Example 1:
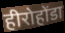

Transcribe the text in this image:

हीरोहोंडा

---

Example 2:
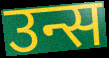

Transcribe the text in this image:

उन्स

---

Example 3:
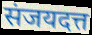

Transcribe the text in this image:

संजयदत्त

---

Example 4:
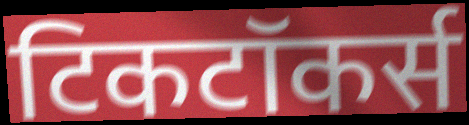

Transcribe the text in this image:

टिकटॉकर्स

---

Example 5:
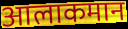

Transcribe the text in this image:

आलाकमान